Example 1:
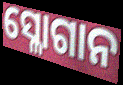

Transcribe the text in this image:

ସ୍ଳୋଗାନ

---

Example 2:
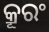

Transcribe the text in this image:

କ୍ରୂରଂ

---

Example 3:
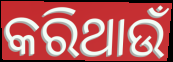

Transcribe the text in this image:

କରିଥାଉଁ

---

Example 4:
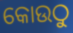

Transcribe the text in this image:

କୋଉଠୁ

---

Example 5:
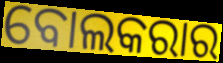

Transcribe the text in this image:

ବୋଲକରାର